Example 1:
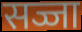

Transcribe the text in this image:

सज्जा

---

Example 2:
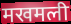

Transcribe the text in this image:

मखमली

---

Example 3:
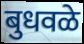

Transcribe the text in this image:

बुधवळे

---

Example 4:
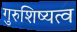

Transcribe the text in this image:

गुरुशिष्यत्व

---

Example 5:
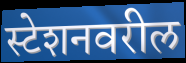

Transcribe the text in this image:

स्टेशनवरील